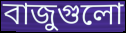
বাজুগুলো